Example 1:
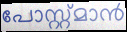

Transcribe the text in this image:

പോസ്റ്റ്മാൻ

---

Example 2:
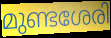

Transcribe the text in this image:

മുണ്ടശേരി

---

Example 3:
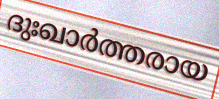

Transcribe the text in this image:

ദുഃഖാർത്തരായ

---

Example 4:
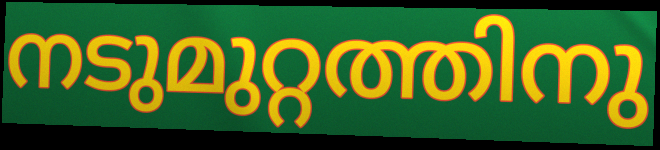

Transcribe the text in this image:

നടുമുറ്റത്തിനു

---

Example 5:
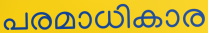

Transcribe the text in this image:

പരമാധികാര